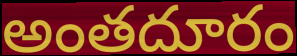
అంతదూరం